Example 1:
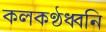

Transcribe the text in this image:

কলকণ্ঠধ্বনি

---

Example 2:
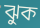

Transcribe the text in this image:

ঝুক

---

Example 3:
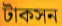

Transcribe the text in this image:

টাকসন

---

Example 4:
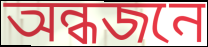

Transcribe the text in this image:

অন্ধজনে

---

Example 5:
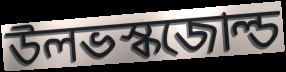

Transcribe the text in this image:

উলভস্কজোল্ড